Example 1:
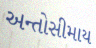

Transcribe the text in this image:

અન્તોસીમાય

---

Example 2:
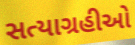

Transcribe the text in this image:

સત્યાગ્રહીઓ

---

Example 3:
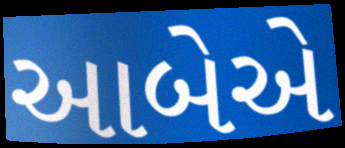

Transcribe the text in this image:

આબેએ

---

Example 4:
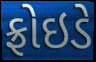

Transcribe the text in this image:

ફ્રોઇડે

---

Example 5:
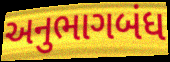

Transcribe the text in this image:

અનુભાગબંધ